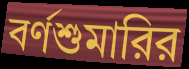
বর্ণশুমারির